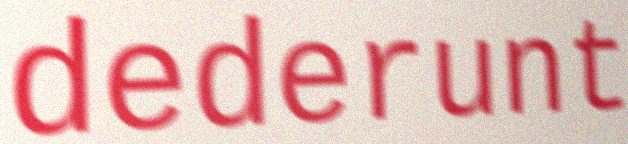
dederunt